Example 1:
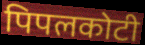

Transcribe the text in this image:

पिपलकोटी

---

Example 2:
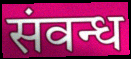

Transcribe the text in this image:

संवन्ध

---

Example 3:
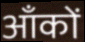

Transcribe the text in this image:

आँकों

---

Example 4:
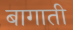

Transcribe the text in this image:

बागाती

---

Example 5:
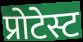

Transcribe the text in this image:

प्रोटेस्ट